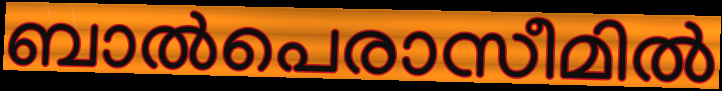
ബാൽപെരാസീമിൽ